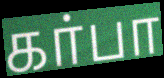
கர்பா